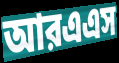
আরএএস